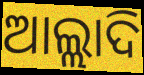
ଆଲ୍ଲାଦି